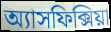
অ্যাসফিক্সিয়া